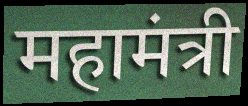
महामंत्री